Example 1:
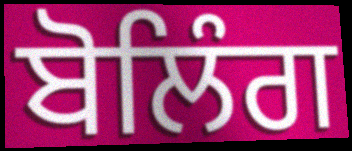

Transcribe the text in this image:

ਬੋਲਿੰਗ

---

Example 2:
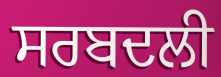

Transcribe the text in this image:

ਸਰਬਦਲੀ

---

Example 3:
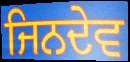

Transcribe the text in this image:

ਜਿਨਦੇਵ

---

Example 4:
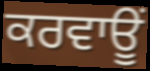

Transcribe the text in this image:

ਕਰਵਾਊਂ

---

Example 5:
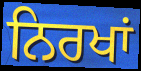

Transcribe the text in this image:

ਨਿਰਖਾਂ